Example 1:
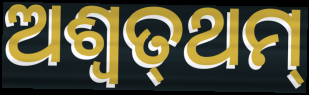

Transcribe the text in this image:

ଅଶ୍ୱତ୍‌ଥମ୍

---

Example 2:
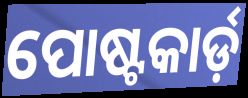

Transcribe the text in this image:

ପୋଷ୍ଟକାର୍ଡ଼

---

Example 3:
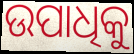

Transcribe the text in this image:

ଉପାଧିକୁ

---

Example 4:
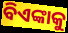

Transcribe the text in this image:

ବିଏଙ୍କାକୁ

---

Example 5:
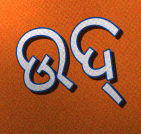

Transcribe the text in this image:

ଉଦ୍